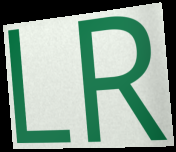
LR